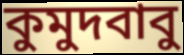
কুমুদবাবু